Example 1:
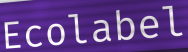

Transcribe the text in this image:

Ecolabel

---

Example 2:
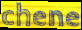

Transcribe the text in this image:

chene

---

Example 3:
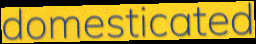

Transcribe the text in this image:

domesticated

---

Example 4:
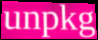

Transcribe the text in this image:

unpkg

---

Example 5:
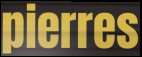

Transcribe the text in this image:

pierres